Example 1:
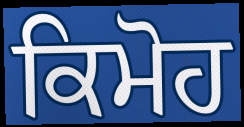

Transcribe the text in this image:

ਕਿਮੋਹ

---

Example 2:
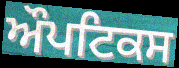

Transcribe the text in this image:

ਔਪਟਿਕਸ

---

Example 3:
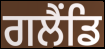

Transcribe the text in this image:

ਗਲੈਂਡਿ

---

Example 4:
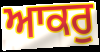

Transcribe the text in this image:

ਆਕਰੁ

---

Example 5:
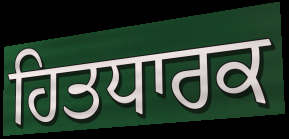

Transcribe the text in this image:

ਹਿਤਧਾਰਕ